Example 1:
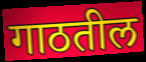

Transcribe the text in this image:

गाठतील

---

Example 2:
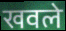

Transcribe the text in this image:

खवले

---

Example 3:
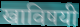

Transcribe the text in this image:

खाविषयी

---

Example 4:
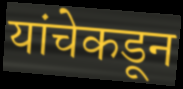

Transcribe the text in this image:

यांचेकडून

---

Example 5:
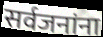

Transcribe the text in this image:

सर्वजनांना